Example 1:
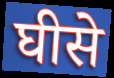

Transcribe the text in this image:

घीसे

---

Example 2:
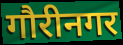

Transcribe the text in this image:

गौरीनगर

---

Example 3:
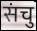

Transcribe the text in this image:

संचु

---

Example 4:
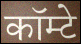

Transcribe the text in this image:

कॉम्टे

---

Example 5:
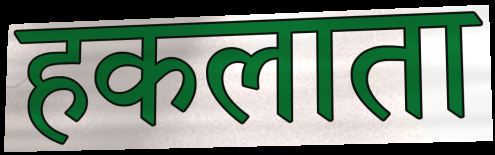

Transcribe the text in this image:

हकलाता